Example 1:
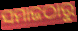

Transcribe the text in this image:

ସମାଜଠାରୁ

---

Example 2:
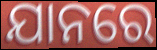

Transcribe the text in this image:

ଯାନରେ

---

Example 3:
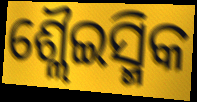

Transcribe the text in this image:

ଶ୍ଲୈଇସ୍ମିକ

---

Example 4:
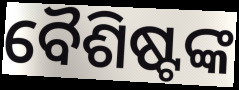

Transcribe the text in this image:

ବୈଶିଷ୍ଟଙ୍କ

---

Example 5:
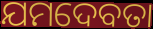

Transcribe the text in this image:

ଯମଦେବତା